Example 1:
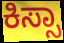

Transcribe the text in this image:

ಕಿಸ್ಸಾ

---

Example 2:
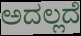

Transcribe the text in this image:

ಅದಲ್ಲದೆ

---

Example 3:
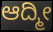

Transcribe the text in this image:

ಆದ್ಮೀ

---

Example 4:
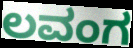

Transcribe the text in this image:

ಲವಂಗ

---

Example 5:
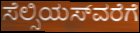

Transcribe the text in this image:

ಸೆಲ್ಸಿಯಸ್‍ವರೆಗೆ